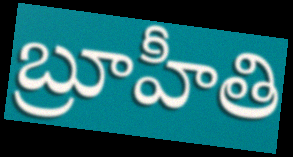
బ్రూహీతి